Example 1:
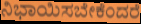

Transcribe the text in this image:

ನಿಭಾಯಿಸಬೇಕೆಂದರೆ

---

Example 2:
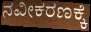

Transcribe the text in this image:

ನವೀಕರಣಕ್ಕೆ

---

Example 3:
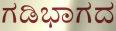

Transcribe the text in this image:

ಗಡಿಭಾಗದ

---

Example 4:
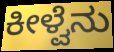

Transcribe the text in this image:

ಕೀಳ್ವೆನು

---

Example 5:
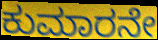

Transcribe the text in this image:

ಕುಮಾರನೇ